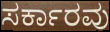
ಸರ್ಕಾರವು